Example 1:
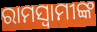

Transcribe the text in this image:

ରାମସ୍ୱାମୀଙ୍କ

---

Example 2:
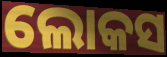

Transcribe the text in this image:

ଲୋକସ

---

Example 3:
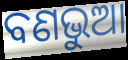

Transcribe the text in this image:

ବଣଭୁଆ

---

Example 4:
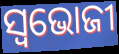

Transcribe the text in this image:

ସ୍ଵଭୋଜୀ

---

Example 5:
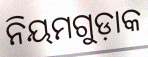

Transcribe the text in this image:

ନିୟମଗୁଡ଼ାକ